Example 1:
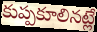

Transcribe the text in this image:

కుప్పకూలినట్లే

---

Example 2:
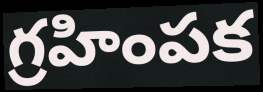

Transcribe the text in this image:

గ్రహింపక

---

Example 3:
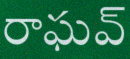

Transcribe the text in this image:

రాఘవ్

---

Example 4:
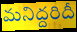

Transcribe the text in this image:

మనిద్దరిదీ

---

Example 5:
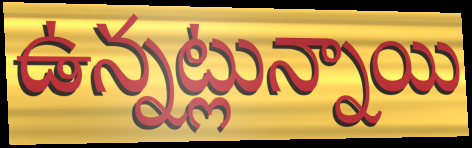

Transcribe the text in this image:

ఉన్నట్లున్నాయి